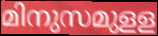
മിനുസമുളള